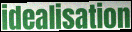
idealisation